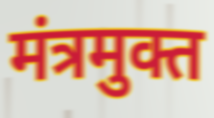
मंत्रमुक्त